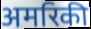
अमरिकी